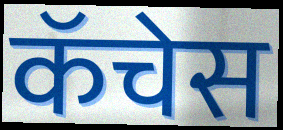
कॅचेस